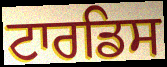
ਟਾਰਡਿਸ